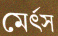
মের্ৎস